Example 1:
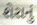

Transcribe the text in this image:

શેરાનું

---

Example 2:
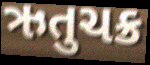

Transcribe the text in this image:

ઋતુચક્ર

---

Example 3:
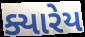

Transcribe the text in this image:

ક્યારેય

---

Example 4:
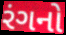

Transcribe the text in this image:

રંગનો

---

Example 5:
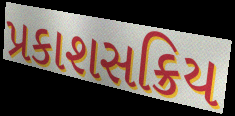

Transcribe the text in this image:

પ્રકાશસક્રિય